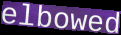
elbowed